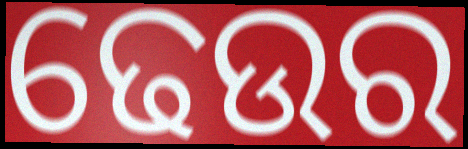
ଢେଉର